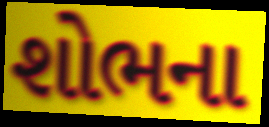
શોભના